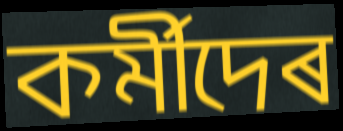
কৰ্মীদেৰ